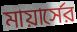
মায়ার্সের